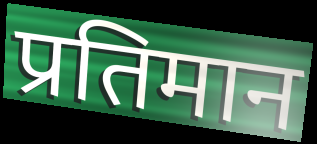
प्रतिमान